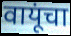
वायूंचा